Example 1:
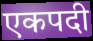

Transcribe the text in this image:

एकपदी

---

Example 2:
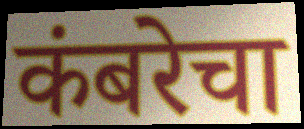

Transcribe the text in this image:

कंबरेचा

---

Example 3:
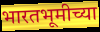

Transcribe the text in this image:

भारतभूमीच्या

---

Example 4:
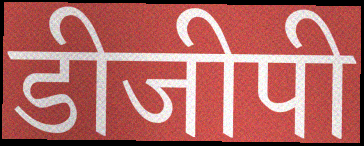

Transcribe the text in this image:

डीजीपी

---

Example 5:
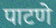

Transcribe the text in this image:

पाटणे